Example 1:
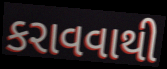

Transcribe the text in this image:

કરાવવાથી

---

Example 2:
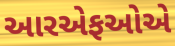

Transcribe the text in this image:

આરએફઓએ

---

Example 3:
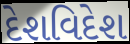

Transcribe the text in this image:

દેશવિદેશ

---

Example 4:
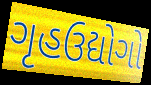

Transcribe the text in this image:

ગૃહઉદ્યોગો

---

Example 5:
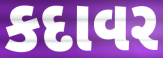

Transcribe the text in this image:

કદાવર